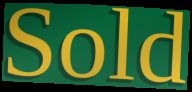
Sold